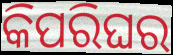
କିପରିଘର